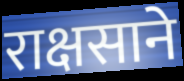
राक्षसाने